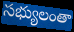
సభ్యులంతా